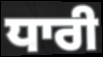
ਧਾਰੀ